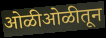
ओळीओळीतून